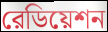
রেডিয়েশন